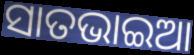
ସାତଭାଇଆ